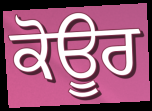
ਕੋਊਰ